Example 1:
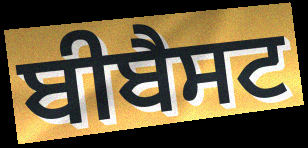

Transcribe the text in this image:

ਬੀਬੈਸਟ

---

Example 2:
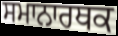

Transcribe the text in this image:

ਸਮਾਨਾਰਥਕ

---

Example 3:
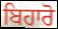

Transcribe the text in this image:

ਬਿਹਾਰੋ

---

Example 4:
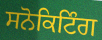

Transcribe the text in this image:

ਸਨੋਕਿਟਿੰਗ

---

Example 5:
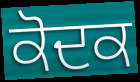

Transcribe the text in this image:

ਕੋਦਕ